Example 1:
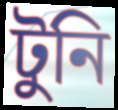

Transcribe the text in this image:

টুনি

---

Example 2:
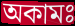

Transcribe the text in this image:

অকামঃ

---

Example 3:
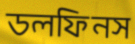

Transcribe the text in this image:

ডলফিনস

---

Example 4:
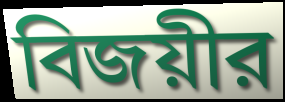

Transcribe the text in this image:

বিজয়ীর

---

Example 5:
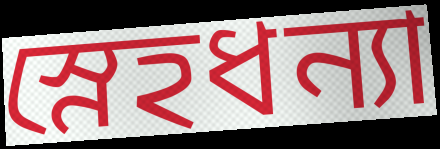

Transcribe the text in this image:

স্নেহধন্যা